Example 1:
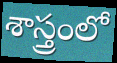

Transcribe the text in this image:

శాస్త్రంలో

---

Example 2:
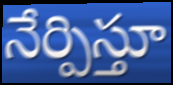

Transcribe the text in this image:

నేర్పిస్తూ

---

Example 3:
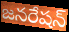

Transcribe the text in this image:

జనరేషన్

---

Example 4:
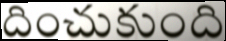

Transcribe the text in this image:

దించుకుంది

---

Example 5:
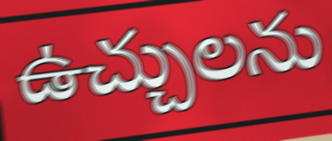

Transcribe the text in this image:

ఉచ్చులను